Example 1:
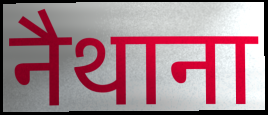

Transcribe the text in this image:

नैथाना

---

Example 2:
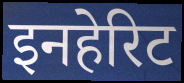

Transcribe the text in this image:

इनहेरिट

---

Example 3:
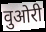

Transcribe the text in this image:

वुओरी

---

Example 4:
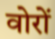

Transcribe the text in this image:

वोरों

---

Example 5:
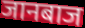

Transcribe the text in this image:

जानबाज